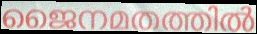
ജൈനമതത്തിൽ